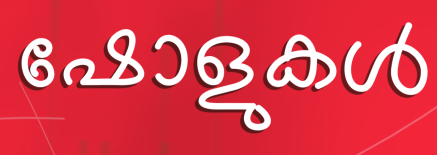
ഷോളുകൾ